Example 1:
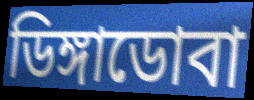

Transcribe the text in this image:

ডিঙ্গাডোবা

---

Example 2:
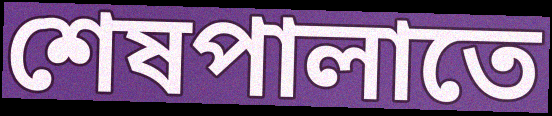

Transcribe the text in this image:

শেষপালাতে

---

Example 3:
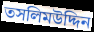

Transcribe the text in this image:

তসলিমউদ্দিন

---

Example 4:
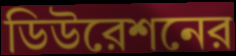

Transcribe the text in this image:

ডিউরেশনের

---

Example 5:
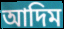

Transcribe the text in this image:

আদিম